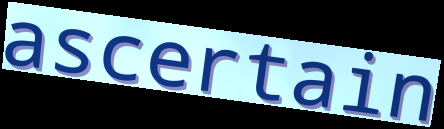
ascertain